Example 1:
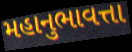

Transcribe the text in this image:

મહાનુભાવત્તા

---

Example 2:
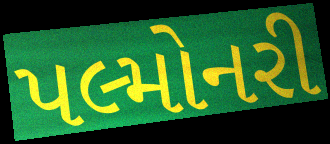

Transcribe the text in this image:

પલ્મોનરી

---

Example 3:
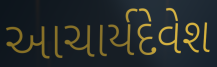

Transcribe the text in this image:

આચાર્યદેવેશ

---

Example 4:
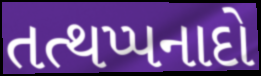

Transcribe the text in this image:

તત્થપ્પનાદો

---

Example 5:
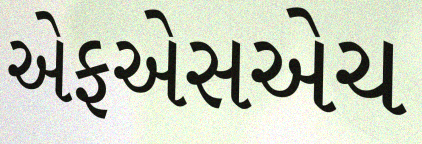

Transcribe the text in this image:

એફએસએચ